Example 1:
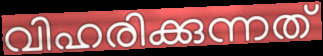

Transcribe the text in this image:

വിഹരിക്കുന്നത്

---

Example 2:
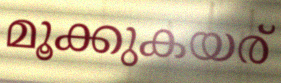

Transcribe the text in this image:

മൂക്കുകയര്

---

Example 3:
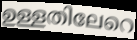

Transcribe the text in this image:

ഉള്ളതിലേറെ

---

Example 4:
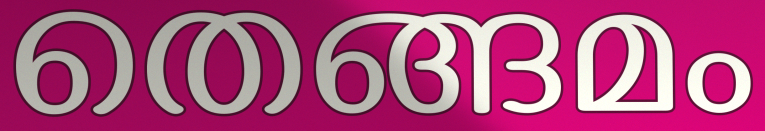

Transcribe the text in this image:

തെങ്ങമം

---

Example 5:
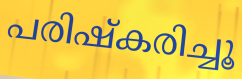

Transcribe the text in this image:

പരിഷ്കരിച്ചൂ